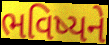
ભવિષ્યને